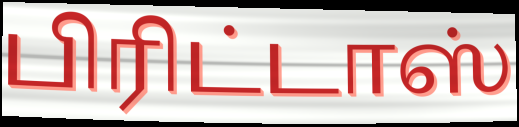
பிரிட்டாஸ்